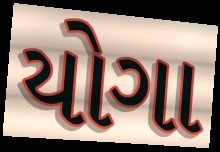
યોગા